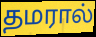
தமரால்